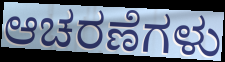
ಆಚರಣೆಗಳು